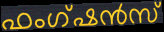
ഫംഗ്ഷൻസ്